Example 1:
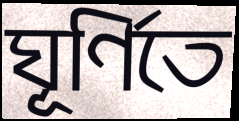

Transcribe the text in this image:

ঘূর্ণিতে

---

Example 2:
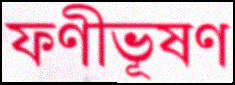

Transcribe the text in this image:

ফণীভূষণ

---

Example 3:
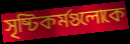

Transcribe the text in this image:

সৃষ্টিকর্মগুলোকে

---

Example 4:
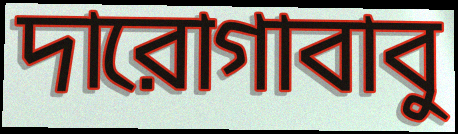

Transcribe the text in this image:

দারোগাবাবু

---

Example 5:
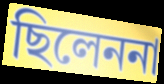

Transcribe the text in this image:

ছিলেননা